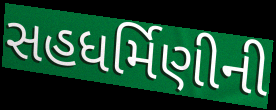
સહધર્મિણીની